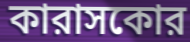
কারাসকোর